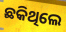
ଛକିଥିଲେ